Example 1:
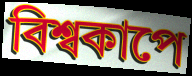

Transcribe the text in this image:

বিশ্বকাপে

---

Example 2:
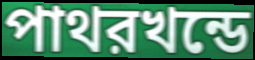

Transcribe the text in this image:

পাথরখন্ডে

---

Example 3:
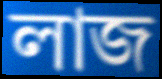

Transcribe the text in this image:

লাজ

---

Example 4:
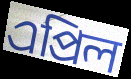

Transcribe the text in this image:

এপ্রিল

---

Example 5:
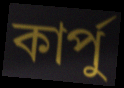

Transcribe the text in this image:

কার্পু